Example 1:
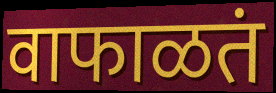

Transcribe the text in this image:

वाफाळतं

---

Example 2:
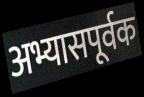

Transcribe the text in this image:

अभ्यासपूर्वक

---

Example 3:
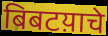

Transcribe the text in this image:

बिबटय़ाचे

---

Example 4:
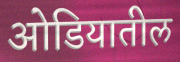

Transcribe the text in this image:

ओडियातील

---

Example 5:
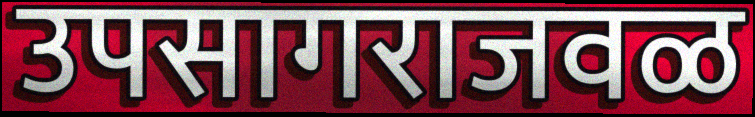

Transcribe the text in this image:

उपसागराजवळ